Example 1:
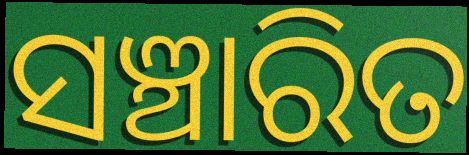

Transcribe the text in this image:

ସଞ୍ଚାରିତ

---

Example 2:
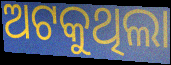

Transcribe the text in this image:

ଅଟକୁଥିଲା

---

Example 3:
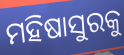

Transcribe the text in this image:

ମହିଷାସୁରକୁ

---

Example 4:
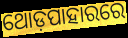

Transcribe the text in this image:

ଥୋଡ଼ପାହାରରେ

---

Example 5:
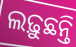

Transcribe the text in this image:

ଲଢ଼ୁଛନ୍ତି